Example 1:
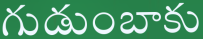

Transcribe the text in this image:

గుడుంబాకు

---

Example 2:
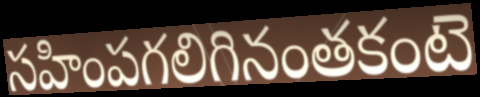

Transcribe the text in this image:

సహింపగలిగినంతకంటె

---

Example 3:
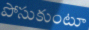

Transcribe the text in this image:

పోసుకుంటూ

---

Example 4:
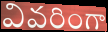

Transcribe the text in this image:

వివరింగా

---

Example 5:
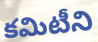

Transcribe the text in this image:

కమిటీని